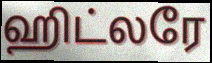
ஹிட்லரே